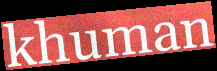
khuman